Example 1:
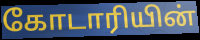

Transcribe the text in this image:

கோடாரியின்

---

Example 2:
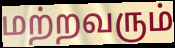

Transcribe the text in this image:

மற்றவரும்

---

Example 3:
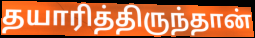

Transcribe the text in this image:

தயாரித்திருந்தான்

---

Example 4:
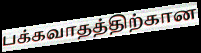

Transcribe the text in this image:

பக்கவாதத்திற்கான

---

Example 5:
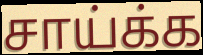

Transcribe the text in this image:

சாய்க்க